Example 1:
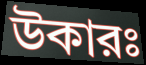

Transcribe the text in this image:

উকারঃ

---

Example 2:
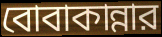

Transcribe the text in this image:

বোবাকান্নার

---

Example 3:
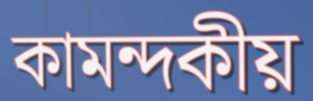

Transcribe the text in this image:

কামন্দকীয়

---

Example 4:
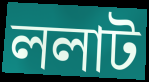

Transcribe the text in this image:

ললাট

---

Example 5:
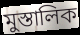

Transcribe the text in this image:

মুস্তালিক